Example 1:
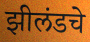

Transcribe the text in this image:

झीलंडचे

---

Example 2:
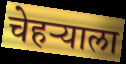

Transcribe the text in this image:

चेहऱ्याला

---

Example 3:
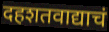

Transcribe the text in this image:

दहशतवाद्याचं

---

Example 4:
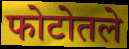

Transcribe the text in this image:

फोटोतले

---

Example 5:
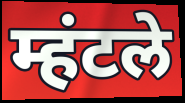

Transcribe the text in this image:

म्हंटले